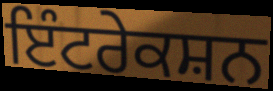
ਇੰਟਰੇਕਸ਼ਨ